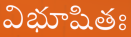
విభూషితః